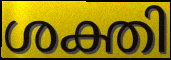
ശക്തി